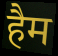
हैम